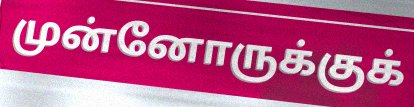
முன்னோருக்குக்